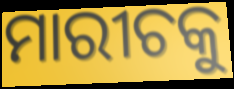
ମାରୀଚକୁ